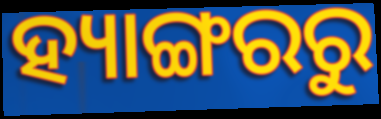
ହ୍ୟାଙ୍ଗରରୁ